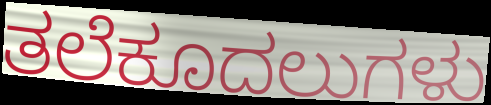
ತಲೆಕೂದಲುಗಳು